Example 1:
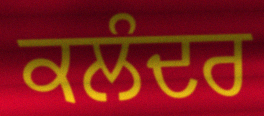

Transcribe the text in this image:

ਕਲੰਦਰ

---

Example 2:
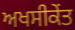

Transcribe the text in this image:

ਅਖਸੀਕੇਂਤ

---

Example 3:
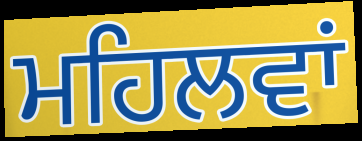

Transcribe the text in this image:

ਮਹਿਲਵਾਂ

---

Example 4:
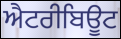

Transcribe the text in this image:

ਐਟਰੀਬਿਊਟ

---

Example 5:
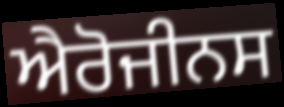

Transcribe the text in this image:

ਐਰੋਜੀਨਸ